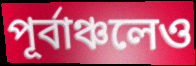
পূর্বাঞ্চলেও